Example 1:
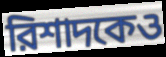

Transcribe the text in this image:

রিশাদকেও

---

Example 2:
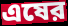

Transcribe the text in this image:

এষের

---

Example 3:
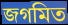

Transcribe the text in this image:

জগমিত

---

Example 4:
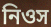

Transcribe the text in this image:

নিওস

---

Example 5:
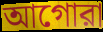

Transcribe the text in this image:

আগোরা